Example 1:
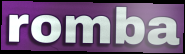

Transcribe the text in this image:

romba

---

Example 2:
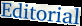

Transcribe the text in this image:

Editorial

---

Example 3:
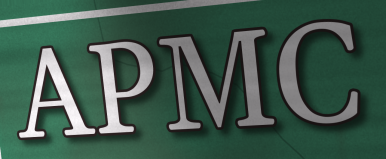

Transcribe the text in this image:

APMC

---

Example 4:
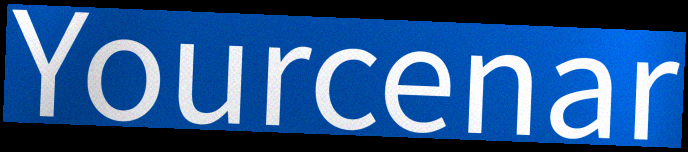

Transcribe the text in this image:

Yourcenar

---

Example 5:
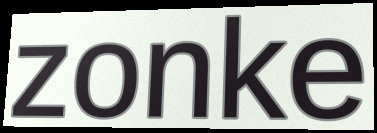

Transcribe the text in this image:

zonke